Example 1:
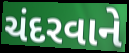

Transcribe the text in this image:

ચંદરવાને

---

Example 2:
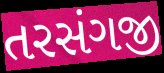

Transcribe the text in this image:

તરસંગજી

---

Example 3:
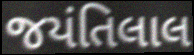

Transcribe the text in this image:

જયંતિલાલ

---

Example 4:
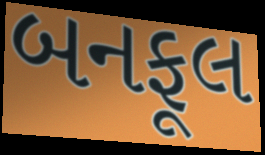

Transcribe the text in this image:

બનફૂલ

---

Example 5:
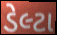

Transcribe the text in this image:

ડેલ્ટા